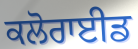
ਕਲੋਰਾਈਡ